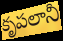
కృపలానీ